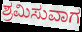
ಶ್ರಮಿಸುವಾಗ